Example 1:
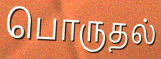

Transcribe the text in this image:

பொருதல்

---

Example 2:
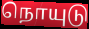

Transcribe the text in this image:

நொயுடு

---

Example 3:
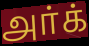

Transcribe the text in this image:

அர்க்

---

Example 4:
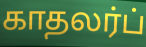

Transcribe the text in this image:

காதலர்ப்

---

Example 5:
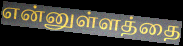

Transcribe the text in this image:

என்னுள்ளத்தை